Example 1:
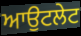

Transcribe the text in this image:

ਆਉਟਲੇਟ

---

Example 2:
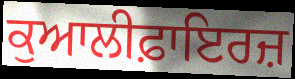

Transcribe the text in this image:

ਕੁਆਲੀਫ਼ਾਇਰਜ਼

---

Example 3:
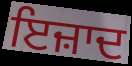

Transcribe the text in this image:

ਇਜ਼ਾਦ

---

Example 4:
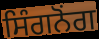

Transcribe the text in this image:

ਸਿੰਗਨੋਂਗ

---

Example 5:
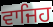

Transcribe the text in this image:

ਵਾਜਿਹ